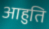
आहुति